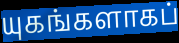
யுகங்களாகப்